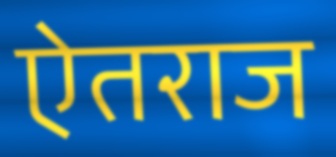
ऐतराज